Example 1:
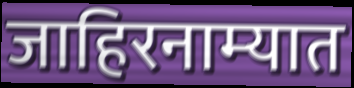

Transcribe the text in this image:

जाहिरनाम्यात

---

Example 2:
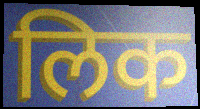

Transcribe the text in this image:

लिक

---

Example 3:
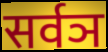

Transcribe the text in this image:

सर्वञ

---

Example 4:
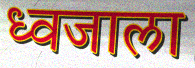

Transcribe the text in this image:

ध्वजाला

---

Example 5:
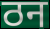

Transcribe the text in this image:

ठन